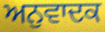
ਅਨੁਵਾਦਕ